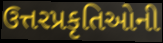
ઉત્તરપ્રકૃતિઓની